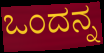
ಒಂದನ್ನ